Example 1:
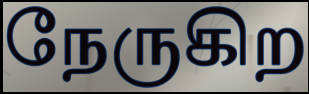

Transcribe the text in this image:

நேருகிற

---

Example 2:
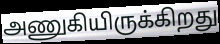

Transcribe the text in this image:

அணுகியிருக்கிறது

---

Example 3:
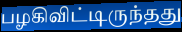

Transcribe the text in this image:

பழகிவிட்டிருந்தது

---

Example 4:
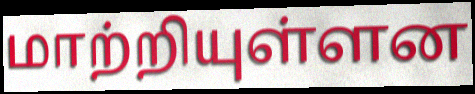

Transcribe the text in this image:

மாற்றியுள்ளன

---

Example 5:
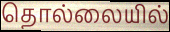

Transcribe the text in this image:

தொல்லையில்